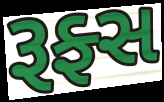
રૂફ્સ